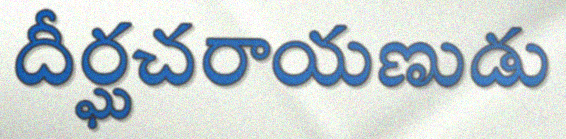
దీర్ఘచరాయణుడు